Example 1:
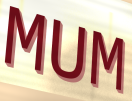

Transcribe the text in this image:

MUM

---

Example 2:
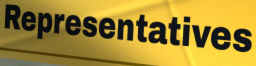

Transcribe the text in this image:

Representatives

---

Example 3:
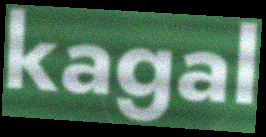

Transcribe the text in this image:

kagal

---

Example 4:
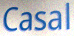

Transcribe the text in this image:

Casal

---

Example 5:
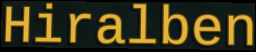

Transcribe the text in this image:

Hiralben